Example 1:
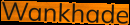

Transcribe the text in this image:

Wankhade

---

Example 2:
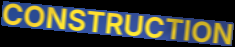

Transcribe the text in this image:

CONSTRUCTION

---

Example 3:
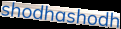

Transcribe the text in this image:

shodhashodh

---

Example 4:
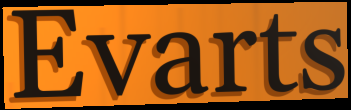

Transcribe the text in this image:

Evarts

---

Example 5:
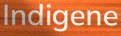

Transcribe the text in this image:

Indigene